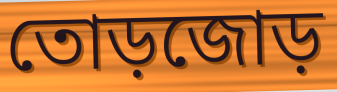
তোড়জোড়